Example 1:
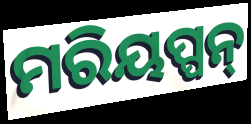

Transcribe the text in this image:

ମରିୟପ୍ପନ୍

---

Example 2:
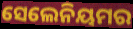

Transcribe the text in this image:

ସେଲେନିୟମର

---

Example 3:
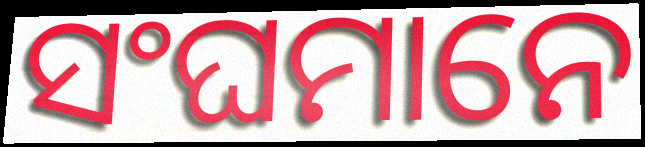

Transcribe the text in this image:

ସଂଘମାନେ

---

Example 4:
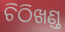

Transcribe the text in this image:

ଚିଠିଖଣ୍ଡ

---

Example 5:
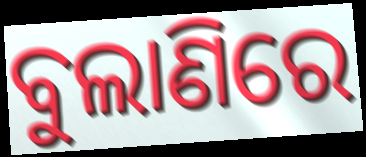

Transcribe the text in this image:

ବୁଲାଣିରେ